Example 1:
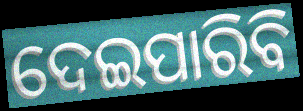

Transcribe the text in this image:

ଦେଇପାରିବି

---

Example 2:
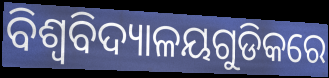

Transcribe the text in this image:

ବିଶ୍ୱବିଦ୍ୟାଳୟଗୁଡିକରେ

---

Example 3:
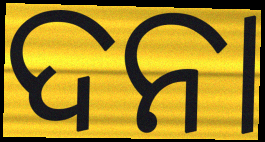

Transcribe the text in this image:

ଦନା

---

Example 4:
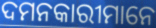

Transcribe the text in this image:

ଦମନକାରୀମାନେ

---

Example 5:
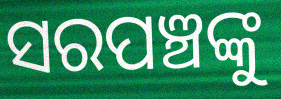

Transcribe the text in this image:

ସରପଞ୍ଚଙ୍କୁ